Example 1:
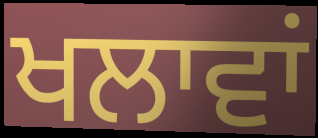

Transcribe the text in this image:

ਖਲਾਵਾਂ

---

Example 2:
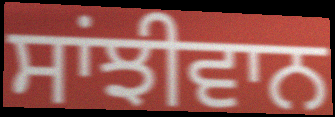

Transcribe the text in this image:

ਸਾਂਝੀਵਾਨ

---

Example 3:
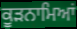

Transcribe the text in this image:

ਕੂੜਨਾਮਿਆਂ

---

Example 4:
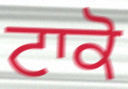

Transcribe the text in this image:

ਟਾਕੋ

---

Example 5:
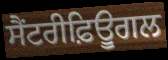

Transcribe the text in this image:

ਸੈਂਟਰੀਫ਼ਿਊਗਲ